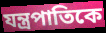
যন্ত্রপাতিকে